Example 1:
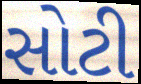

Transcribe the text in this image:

સોટી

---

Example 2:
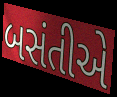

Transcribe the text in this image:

બસંતીએ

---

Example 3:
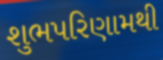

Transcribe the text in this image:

શુભપરિણામથી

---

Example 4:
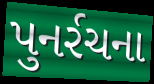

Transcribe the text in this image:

પુનર્રચના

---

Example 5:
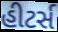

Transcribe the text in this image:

હીટર્સ